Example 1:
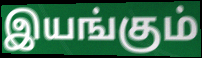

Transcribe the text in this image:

இயங்கும்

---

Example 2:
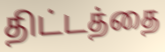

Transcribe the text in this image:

திட்டத்தை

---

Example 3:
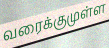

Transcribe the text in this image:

வரைக்குமுள்ள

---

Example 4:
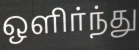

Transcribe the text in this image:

ஒளிர்ந்து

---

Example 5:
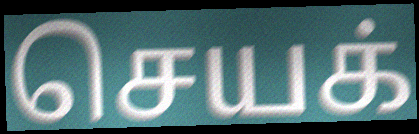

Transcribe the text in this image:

செயக்